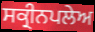
ਸਕ੍ਰੀਨਪਲੇਅ